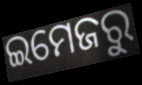
ଇମେଜରୁ